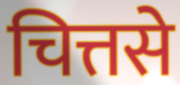
चित्तसे